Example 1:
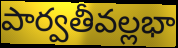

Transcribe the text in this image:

పార్వతీవల్లభా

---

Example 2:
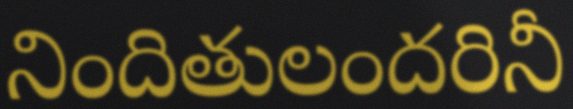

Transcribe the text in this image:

నిందితులందరినీ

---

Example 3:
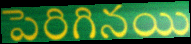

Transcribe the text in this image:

పెరిగినయి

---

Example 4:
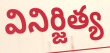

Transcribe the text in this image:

వినిర్జిత్య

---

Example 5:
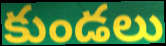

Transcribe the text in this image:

కుండలు